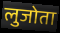
लुजोता